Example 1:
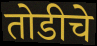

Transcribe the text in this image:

तोडीचे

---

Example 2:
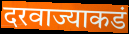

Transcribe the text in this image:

दरवाज्याकडं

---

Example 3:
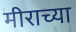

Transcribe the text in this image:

मीराच्या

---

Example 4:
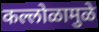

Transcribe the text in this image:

कल्लोळामुळे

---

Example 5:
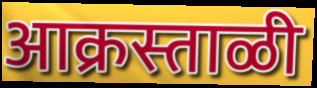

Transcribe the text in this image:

आक्रस्ताळी